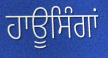
ਹਾਊਸਿੰਗਾਂ